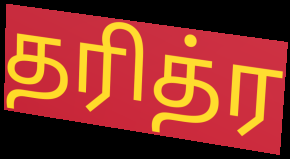
தரித்ர